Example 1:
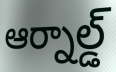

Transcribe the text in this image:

ఆర్నాల్డ్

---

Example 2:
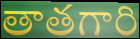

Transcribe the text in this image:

తాతగారి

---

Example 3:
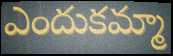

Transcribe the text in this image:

ఎందుకమ్మా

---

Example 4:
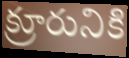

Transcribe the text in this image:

క్రూరునికి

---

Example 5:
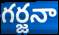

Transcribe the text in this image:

గర్జనా